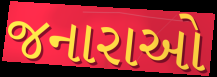
જનારાઓ